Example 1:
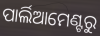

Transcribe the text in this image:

ପାର୍ଲିଆମେଣ୍ଟରୁ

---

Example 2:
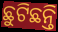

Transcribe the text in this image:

ଛୁଟିଛନ୍ତି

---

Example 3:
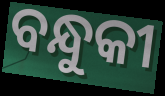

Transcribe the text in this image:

ବନ୍ଧୁକୀ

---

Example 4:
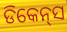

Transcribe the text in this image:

ଡିକେନ୍‌ସ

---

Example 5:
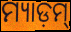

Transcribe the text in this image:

ମ୍ୟାଡ଼ମ୍